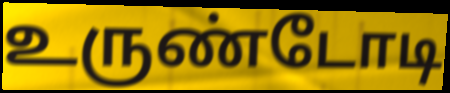
உருண்டோடி